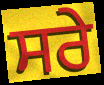
ਸਰੇ